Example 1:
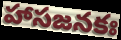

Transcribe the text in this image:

హాసజనకః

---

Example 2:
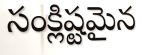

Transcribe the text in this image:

సంక్లిష్టమైన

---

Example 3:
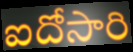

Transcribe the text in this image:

ఐదోసారి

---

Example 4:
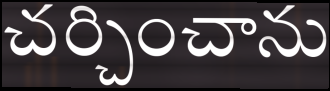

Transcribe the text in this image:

చర్చించాను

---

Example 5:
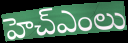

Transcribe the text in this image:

హెచ్ఎంలు